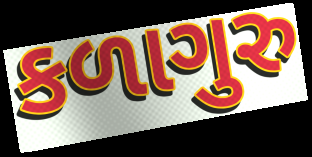
કળાગુરુ